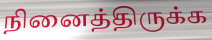
நினைத்திருக்க